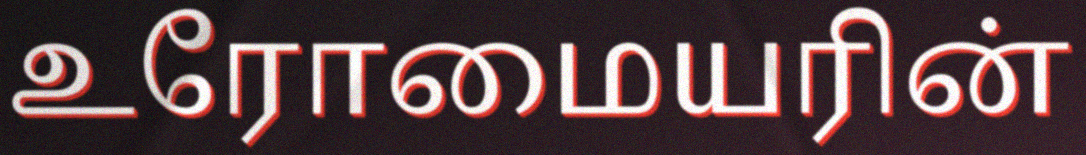
உரோமையரின்